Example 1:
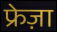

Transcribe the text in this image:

फ्रेज़ा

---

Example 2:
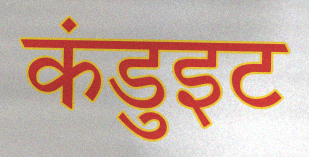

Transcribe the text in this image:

कंडुइट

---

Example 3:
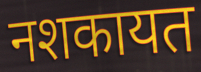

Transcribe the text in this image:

नशकायत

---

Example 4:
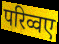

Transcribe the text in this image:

परिव्वए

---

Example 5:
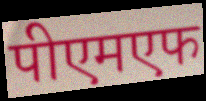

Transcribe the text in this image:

पीएमएफ